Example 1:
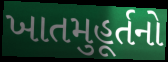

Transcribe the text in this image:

ખાતમુહૂર્તનો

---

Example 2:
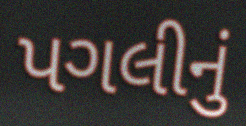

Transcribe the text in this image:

પગલીનું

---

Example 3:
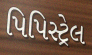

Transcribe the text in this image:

પિપિસ્ટ્રેલ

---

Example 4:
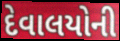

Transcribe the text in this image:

દેવાલયોની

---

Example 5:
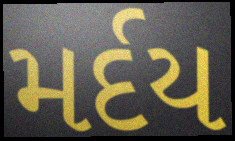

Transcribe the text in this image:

મર્દય